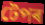
টেপৰ